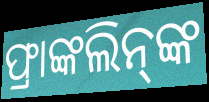
ଫ୍ରାଙ୍କଲିନ୍‌ଙ୍କ